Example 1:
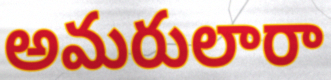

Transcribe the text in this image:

అమరులారా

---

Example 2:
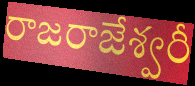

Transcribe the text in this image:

రాజరాజేశ్వరీ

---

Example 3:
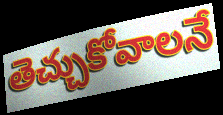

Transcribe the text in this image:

తెచ్చుకోవాలనే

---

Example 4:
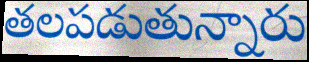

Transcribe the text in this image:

తలపడుతున్నారు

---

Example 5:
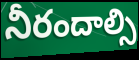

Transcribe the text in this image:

నీరందాల్సి